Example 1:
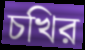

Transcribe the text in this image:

চখির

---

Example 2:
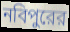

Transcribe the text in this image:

নবিপুরের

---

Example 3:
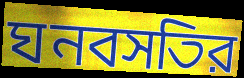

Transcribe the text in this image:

ঘনবসতির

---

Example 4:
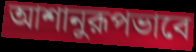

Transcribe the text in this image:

আশানুরূপভাবে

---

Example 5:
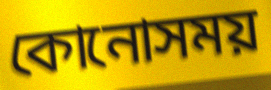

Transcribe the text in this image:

কোনোসময়